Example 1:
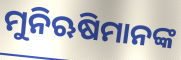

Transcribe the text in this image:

ମୁନିଋଷିମାନଙ୍କ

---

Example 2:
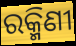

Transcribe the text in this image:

ରକ୍ମିଣୀ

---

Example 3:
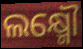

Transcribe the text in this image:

ଲକ୍ଷ୍ମୌ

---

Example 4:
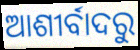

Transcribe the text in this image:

ଆଶୀର୍ବାଦରୁ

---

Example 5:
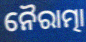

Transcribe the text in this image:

ନୈରାତ୍ମା